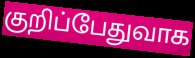
குறிப்பேதுவாக